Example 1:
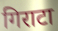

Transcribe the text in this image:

गिराटा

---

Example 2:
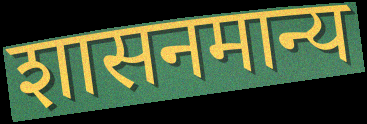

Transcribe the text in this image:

शासनमान्य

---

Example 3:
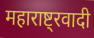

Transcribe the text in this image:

महाराष्ट्रवादी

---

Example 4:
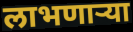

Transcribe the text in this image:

लाभणाऱ्या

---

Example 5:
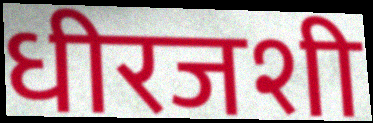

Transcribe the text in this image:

धीरजशी